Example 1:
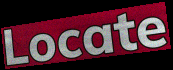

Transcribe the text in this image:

Locate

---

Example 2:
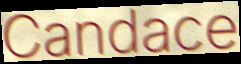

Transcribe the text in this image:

Candace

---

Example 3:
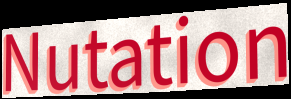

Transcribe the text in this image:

Nutation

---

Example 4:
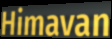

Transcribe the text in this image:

Himavan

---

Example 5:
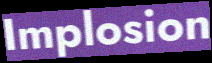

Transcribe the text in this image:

Implosion